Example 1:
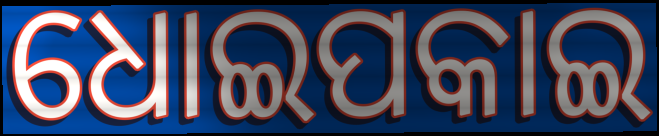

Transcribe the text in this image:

ଧୋଇପକାଇ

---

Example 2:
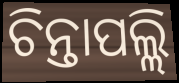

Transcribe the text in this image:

ଚିନ୍ତାପଲ୍ଲି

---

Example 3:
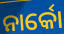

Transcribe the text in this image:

ନାର୍କୋ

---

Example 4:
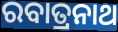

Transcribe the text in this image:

ରବାତ୍ରନାଥ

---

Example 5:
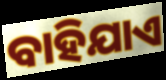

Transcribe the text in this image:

ବାହିଯାଏ